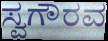
ಸ್ವಗೌರವ